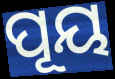
ପୂୟ